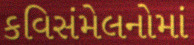
કવિસંમેલનોમાં